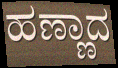
ಹಣ್ಣಾದ